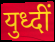
युध्दीं